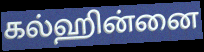
கல்ஹின்னை